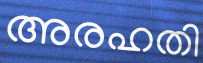
അരഹതി